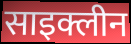
साइक्लीन